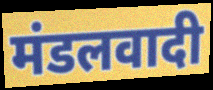
मंडलवादी